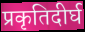
प्रकृतिदीर्घ